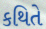
કથિતે